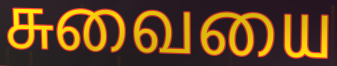
சுவையை